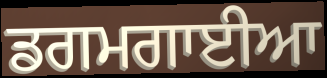
ਡਗਮਗਾਈਆ